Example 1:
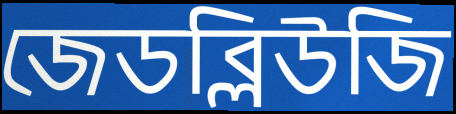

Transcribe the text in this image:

জেডব্লিউজি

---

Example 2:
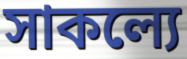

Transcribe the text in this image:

সাকল্যে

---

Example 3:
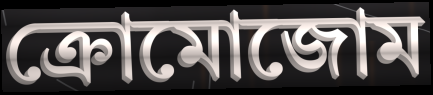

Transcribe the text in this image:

ক্রোমোজোম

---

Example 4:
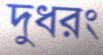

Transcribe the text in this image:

দুধরং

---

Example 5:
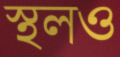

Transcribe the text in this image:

স্থলও